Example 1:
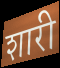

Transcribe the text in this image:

शारी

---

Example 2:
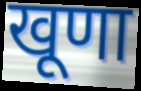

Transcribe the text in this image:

खूणा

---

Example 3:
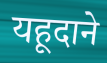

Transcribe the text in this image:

यहूदाने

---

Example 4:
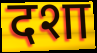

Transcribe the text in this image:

दशा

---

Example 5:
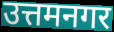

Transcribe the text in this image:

उत्तमनगर